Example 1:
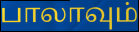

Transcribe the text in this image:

பாலாவும்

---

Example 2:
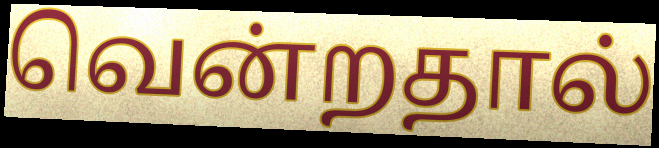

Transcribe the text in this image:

வென்றதால்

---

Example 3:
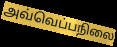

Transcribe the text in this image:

அவ்வெப்பநிலை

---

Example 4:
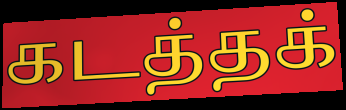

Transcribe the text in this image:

கடத்தக்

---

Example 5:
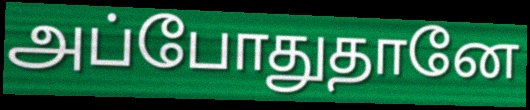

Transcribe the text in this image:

அப்போதுதானே